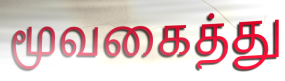
மூவகைத்து